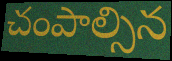
చంపాల్సిన